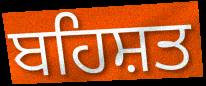
ਬਹਿਸ਼ਤ